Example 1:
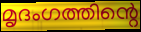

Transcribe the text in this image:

മൃദംഗത്തിന്റെ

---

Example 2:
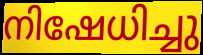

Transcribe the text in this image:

നിഷേധിച്ചു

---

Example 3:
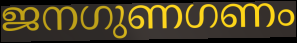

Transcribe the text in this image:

ജനഗുണഗണം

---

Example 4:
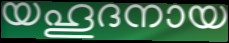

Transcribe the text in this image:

യഹൂദനായ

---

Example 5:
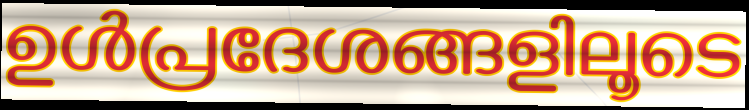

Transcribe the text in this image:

ഉൾപ്രദേശങ്ങളിലൂടെ